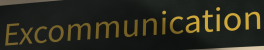
Excommunication